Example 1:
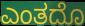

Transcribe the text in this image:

ಎಂತದೊ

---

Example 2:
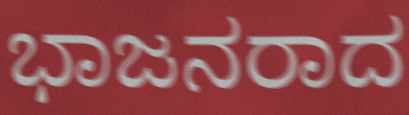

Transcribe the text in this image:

ಭಾಜನರಾದ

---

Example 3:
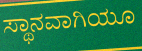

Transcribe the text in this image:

ಸ್ಥಾನವಾಗಿಯೂ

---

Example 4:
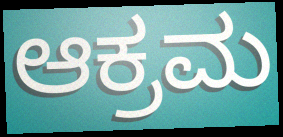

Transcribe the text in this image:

ಆಕ್ರಮ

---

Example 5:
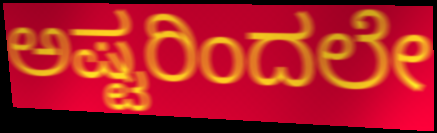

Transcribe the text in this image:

ಅಷ್ಟರಿಂದಲೇ